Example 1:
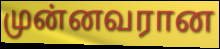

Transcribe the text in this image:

முன்னவரான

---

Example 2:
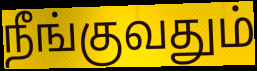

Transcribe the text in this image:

நீங்குவதும்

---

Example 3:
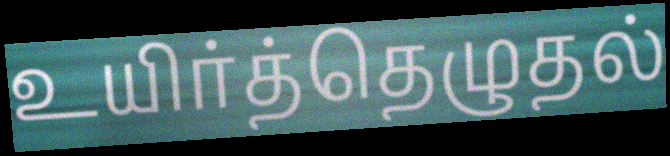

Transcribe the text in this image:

உயிர்த்தெழுதல்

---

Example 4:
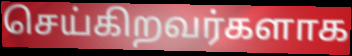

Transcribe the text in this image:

செய்கிறவர்களாக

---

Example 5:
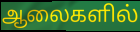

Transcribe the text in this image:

ஆலைகளில்